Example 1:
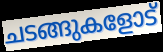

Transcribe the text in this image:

ചടങ്ങുകളോട്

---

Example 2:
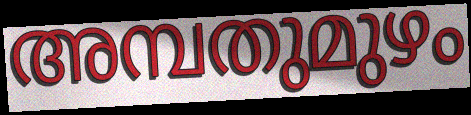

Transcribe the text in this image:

അമ്പതുമുഴം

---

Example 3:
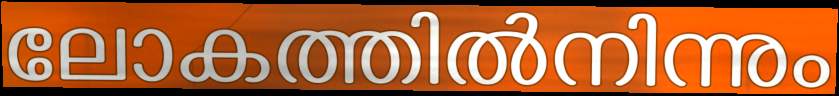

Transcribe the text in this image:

ലോകത്തിൽനിന്നും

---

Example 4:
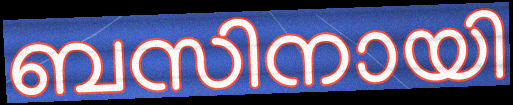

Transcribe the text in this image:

ബസിനായി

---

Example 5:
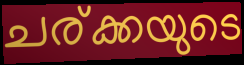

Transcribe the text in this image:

ചര്ക്കയുടെ